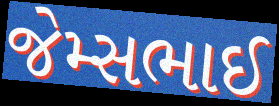
જેમ્સભાઈ